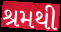
શ્રમથી